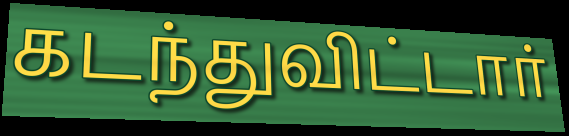
கடந்துவிட்டார்